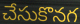
చేసుకొనగ